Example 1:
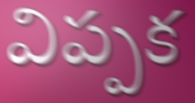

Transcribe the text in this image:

విప్పక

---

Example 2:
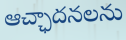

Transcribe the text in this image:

ఆచ్ఛాదనలను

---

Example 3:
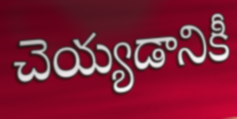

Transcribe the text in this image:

చెయ్యడానికీ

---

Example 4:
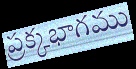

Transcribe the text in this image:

ప్రక్కభాగము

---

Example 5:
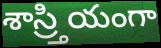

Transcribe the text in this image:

శాస్ర్తియంగా